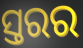
ସ୍ତରର